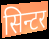
सिन्टर